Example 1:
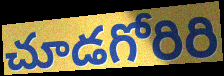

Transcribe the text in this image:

చూడగోరిరి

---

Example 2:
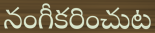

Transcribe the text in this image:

నంగీకరించుట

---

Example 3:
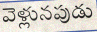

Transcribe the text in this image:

వెళ్లునపుడు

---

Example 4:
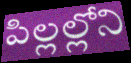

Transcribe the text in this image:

పిల్లల్లోని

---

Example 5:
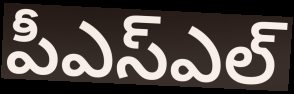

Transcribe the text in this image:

పీఎస్ఎల్